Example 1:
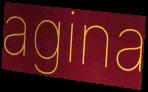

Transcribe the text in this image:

agina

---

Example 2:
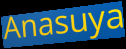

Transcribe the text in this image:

Anasuya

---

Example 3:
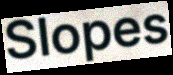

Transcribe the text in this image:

Slopes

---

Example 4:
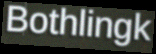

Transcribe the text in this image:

Bothlingk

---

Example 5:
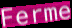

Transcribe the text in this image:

Ferme